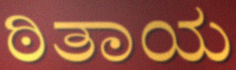
ಠಿತಾಯ